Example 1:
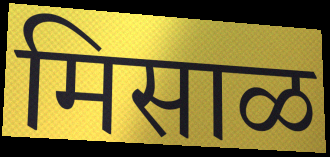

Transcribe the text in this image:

मिसाळ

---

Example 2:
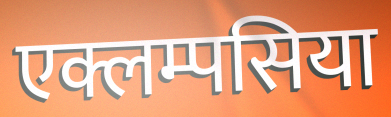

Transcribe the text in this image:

एक्लम्पसिया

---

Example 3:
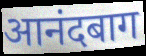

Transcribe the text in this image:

आनंदबाग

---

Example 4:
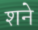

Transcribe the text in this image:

शने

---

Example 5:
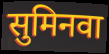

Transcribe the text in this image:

सुमिनवा